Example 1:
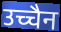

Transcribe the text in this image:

उच्चैन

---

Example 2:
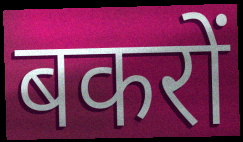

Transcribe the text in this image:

बकरों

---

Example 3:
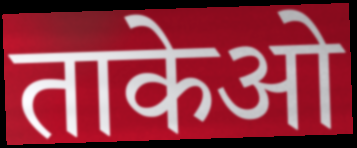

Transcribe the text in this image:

ताकेओ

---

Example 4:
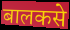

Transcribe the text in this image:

बालकसे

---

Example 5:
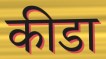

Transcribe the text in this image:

कीडा